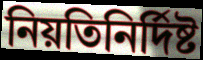
নিয়তিনির্দিষ্ট